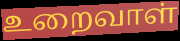
உறைவாள்